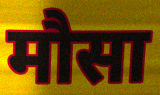
मौसा